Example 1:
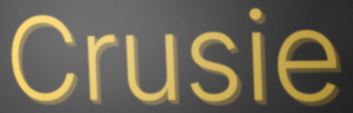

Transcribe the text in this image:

Crusie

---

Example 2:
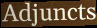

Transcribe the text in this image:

Adjuncts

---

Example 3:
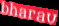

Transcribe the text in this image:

bharau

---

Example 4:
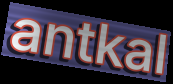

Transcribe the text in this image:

antkal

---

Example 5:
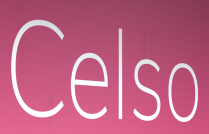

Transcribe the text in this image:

Celso